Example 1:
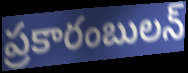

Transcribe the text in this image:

ప్రకారంబులన్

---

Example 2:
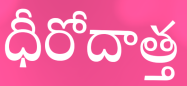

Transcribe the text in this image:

ధీరోదాత్త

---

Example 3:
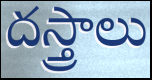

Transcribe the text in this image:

దస్త్రాలు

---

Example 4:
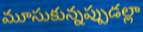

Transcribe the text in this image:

మూసుకున్నప్పుడల్లా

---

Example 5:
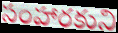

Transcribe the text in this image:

సంహారకుని